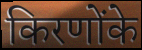
किरणोंके